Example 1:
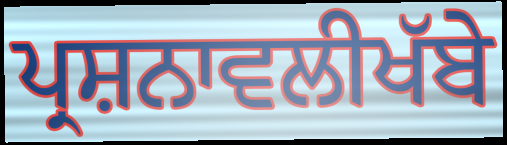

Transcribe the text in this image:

ਪ੍ਰਸ਼ਨਾਵਲੀਖੱਬੇ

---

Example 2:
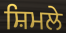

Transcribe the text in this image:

ਸ਼ਿਮਲੇ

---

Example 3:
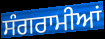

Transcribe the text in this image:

ਸੰਗਰਾਮੀਆਂ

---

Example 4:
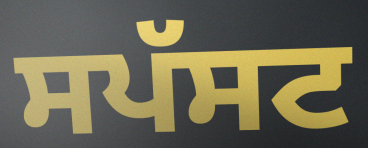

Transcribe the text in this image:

ਸਪੱਸਟ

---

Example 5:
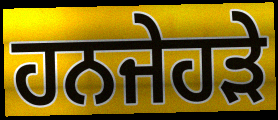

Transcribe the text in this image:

ਹਨਜੇਹੜੇ